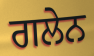
ਗਲੇਨ